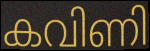
കവിണി